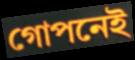
গোপনেই